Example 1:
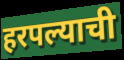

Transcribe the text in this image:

हरपल्याची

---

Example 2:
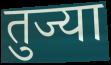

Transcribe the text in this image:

तुज्या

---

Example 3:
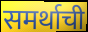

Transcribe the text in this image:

समर्थाची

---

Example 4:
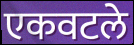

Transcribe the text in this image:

एकवटले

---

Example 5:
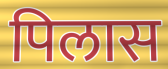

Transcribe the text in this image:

पिलास